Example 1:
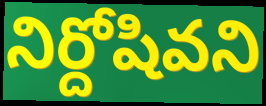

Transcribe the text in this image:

నిర్దోషివని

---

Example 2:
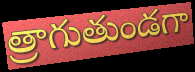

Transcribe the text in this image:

త్రాగుతుండగా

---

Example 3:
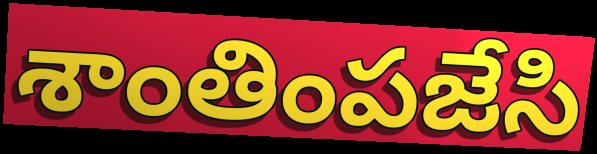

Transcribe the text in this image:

శాంతింపజేసి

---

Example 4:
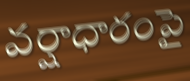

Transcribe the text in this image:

వర్షాధారంపై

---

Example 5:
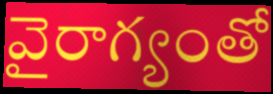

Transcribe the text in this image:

వైరాగ్యంతో